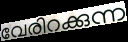
വേരിറക്കുന്ന